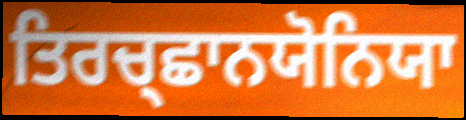
ਤਿਰਚ੍ਛਾਨਯੋਨਿਯਾ